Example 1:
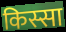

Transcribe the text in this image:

किस्सा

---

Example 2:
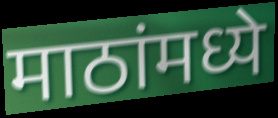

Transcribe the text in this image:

माठांमध्ये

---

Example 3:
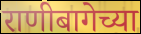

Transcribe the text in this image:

राणीबागेच्या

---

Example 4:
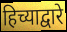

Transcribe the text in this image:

हिच्याद्वारे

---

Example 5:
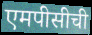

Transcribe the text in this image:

एमपीसीची